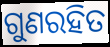
ଗୁଣରହିତ